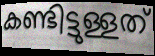
കണ്ടിട്ടുള്ളത്